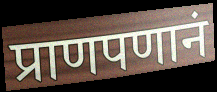
प्राणपणानं